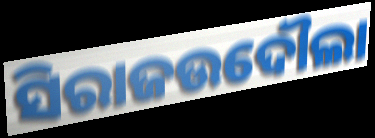
ସିରାଜଉଦୌଲା